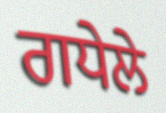
ਗਧੇਲੇ